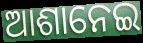
ଆଶାନେଇ